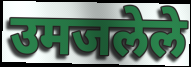
उमजलेले